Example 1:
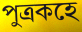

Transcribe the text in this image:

পুত্ৰকহে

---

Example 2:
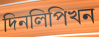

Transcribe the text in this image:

দিনলিপিখন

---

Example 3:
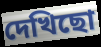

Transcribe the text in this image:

দেখিছো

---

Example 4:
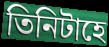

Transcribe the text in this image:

তিনিটাহে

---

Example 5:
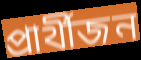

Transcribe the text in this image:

প্ৰাৰ্থীজন